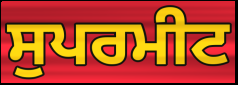
ਸੁਪਰਮੀਟ